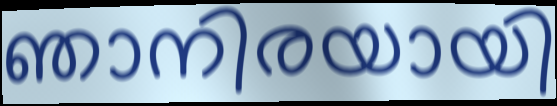
ഞാനിരയായി